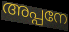
അപ്പനേ